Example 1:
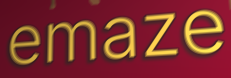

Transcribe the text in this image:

emaze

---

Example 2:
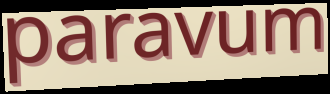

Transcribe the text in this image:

paravum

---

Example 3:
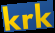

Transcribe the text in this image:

krk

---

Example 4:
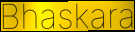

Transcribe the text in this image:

Bhaskara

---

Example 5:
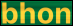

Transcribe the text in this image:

bhon